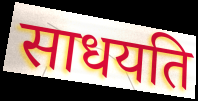
साधयति